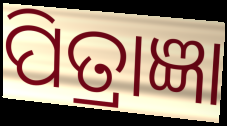
ପିତ୍ରାଜ୍ଞା